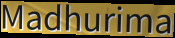
Madhurima